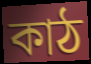
কাঠ